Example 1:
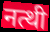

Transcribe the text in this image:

नत्थी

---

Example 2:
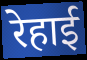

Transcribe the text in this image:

रेहाई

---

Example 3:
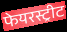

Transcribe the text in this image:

फेयरस्ट्रीट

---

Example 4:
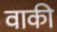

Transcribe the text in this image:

वाकी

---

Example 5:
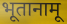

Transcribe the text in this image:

भूतानामू